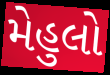
મેહુલો